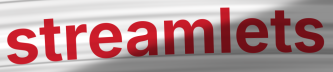
streamlets